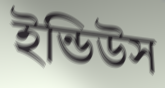
ইন্ডিউস